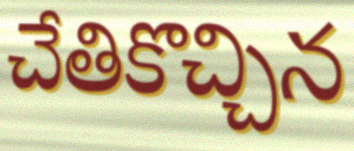
చేతికొచ్చిన